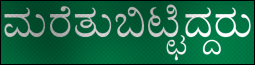
ಮರೆತುಬಿಟ್ಟಿದ್ದರು